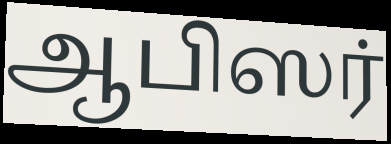
ஆபிஸர்